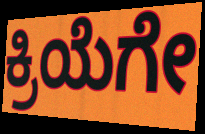
ಕ್ರಿಯೆಗೇ